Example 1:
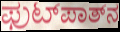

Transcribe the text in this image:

ಫುಟ್‌ಪಾತ್‌ನ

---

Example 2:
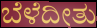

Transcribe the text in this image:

ಬೆಳೆದೀತು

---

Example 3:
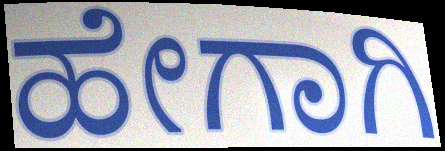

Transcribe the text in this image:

ಹೇಗಾಗಿ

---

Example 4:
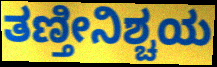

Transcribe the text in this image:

ತಣ್ತೀನಿಶ್ಚಯ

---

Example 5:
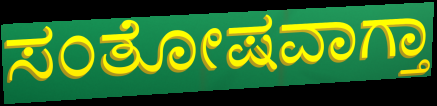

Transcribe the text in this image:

ಸಂತೋಷವಾಗ್ತಾ